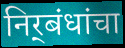
निर्बंधांचा